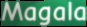
Magala